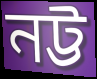
নট্ট